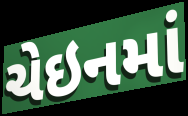
ચેઇનમાં